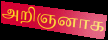
அறிஞனாக